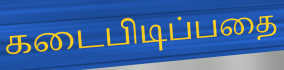
கடைபிடிப்பதை